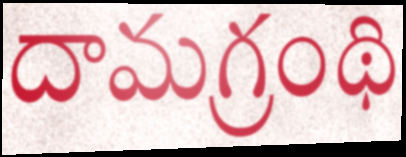
దామగ్రంథి